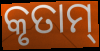
କୃତାମ୍